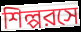
শিল্পরসে